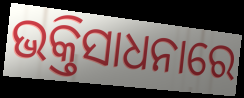
ଭକ୍ତିସାଧନାରେ